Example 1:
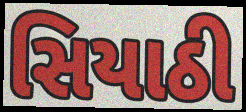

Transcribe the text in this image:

સિયાઠી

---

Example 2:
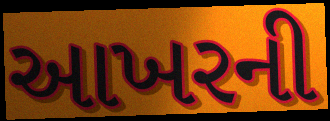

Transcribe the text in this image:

આખરની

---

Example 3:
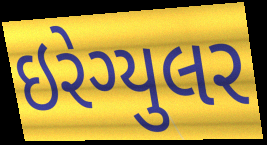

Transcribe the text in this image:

ઇરેગ્યુલર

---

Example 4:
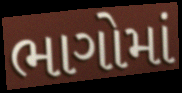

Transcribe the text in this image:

ભાગોમાં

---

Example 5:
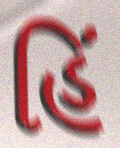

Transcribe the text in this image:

હિં